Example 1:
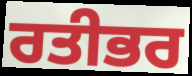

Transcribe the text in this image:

ਰਤੀਭਰ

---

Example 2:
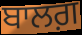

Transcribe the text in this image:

ਬਾਲਗ਼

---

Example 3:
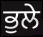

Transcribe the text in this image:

ਭੁਲੇ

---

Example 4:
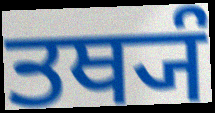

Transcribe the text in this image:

ਤਥ੍ਯੰ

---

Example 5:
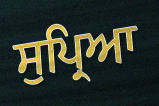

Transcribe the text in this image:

ਸੁਪ੍ਰਿਆ